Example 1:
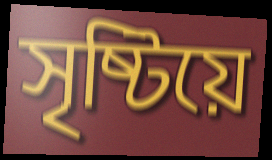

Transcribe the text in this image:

সৃষ্টিয়ে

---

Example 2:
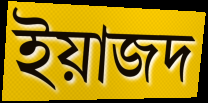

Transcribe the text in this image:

ইয়াজদ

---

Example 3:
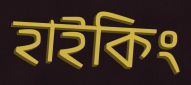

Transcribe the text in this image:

হাইকিং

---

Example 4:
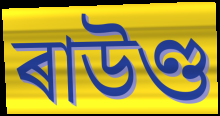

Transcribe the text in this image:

ৰাউণ্ড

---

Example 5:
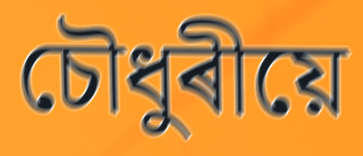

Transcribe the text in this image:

চৌধুৰীয়ে